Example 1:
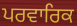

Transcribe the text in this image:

ਪਰਵਾਰਿਕ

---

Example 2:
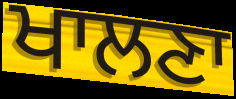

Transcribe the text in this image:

ਖਾਲਣਾ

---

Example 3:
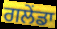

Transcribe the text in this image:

ਗਲੇਂਡਾ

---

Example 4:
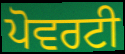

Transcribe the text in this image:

ਪੋਵਰਟੀ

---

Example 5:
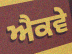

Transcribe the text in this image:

ਐਕਵੇ